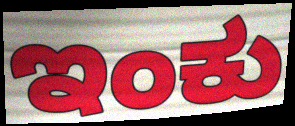
ಇಂಕು